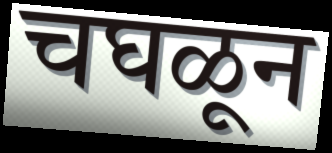
चघळून